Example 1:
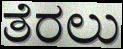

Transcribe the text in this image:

ತೆರಲು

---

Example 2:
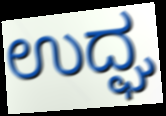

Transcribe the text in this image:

ಉದ್ಘ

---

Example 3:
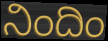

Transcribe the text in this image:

ನಿಂದಿಂ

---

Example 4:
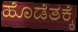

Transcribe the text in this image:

ಹೊಡೆತಕ್ಕೆ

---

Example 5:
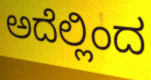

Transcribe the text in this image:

ಅದೆಲ್ಲಿಂದ